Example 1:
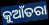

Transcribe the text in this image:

କୁଆଁତରା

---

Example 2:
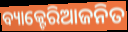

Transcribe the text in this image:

ବ୍ୟାକ୍ଟେରିଆଜନିତ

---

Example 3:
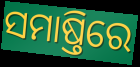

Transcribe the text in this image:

ସମାଷ୍ତିରେ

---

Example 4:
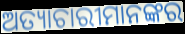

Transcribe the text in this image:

ଅତ୍ୟାଚାରୀମାନଙ୍କର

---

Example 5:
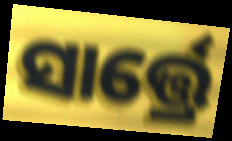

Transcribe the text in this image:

ସାର୍ତ୍ତ୍ରେ